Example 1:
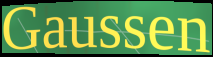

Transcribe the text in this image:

Gaussen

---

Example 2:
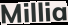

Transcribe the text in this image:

Millia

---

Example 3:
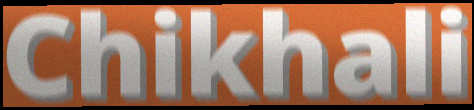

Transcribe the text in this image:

Chikhali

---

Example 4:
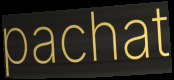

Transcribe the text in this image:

pachat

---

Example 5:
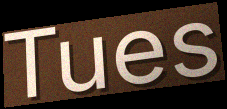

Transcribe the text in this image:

Tues